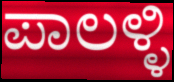
ಪಾಲಳ್ಳಿ